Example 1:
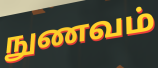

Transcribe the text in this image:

நுணவம்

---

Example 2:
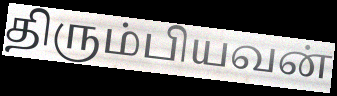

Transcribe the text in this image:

திரும்பியவன்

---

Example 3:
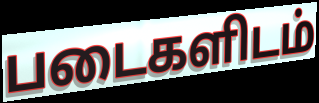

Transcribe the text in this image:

படைகளிடம்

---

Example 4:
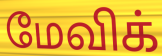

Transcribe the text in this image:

மேவிக்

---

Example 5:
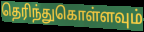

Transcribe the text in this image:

தெரிந்துகொள்ளவும்